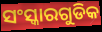
ସଂସ୍କାରଗୁଡିକ